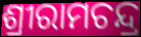
ଶ୍ରୀରାମଚନ୍ଦ୍ର